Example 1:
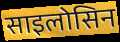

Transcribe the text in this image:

साइलोसिन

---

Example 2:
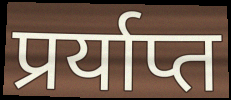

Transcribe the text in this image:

प्रर्याप्त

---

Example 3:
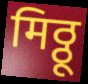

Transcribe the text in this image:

मिठ्ठू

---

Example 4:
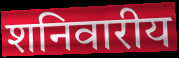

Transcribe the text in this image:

शनिवारीय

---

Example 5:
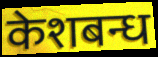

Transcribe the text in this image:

केशबन्ध